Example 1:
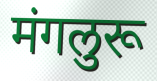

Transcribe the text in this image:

मंगलुरू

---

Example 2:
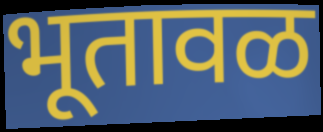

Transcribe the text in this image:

भूतावळ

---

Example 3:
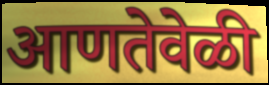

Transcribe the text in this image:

आणतेवेळी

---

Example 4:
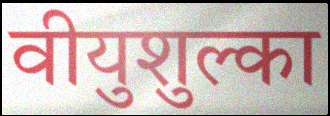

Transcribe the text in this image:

वीयुशुल्का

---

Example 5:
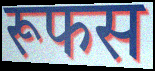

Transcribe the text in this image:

रूफस